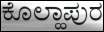
ಕೊಲ್ಹಾಪುರ